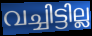
വച്ചിട്ടില്ല